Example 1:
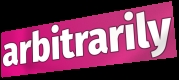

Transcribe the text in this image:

arbitrarily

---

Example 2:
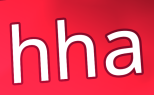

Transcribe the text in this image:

hha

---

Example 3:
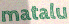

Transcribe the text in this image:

matalu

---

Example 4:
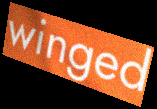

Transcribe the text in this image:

winged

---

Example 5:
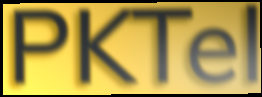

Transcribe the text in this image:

PKTel